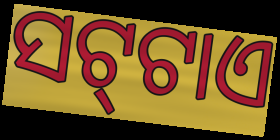
ସଟ୍‍ଟାଏ